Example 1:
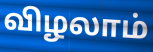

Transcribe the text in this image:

விழலாம்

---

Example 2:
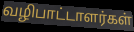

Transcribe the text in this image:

வழிபாட்டாளர்கள்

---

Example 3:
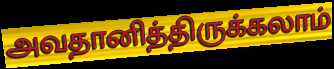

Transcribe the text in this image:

அவதானித்திருக்கலாம்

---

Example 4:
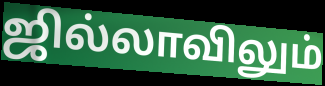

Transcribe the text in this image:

ஜில்லாவிலும்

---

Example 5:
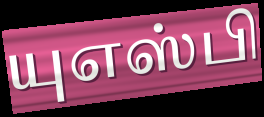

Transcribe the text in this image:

யுஎஸ்பி